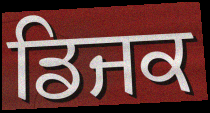
ਡਿਜਕ